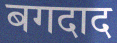
बगदाद